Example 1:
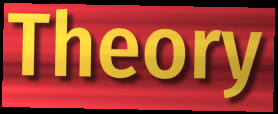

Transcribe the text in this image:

Theory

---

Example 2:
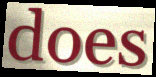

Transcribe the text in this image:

does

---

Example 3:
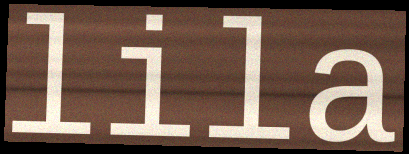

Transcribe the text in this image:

lila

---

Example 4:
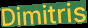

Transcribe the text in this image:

Dimitris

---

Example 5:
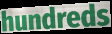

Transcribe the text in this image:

hundreds